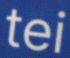
tei